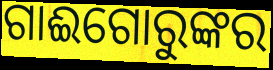
ଗାଈଗୋରୁଙ୍କର